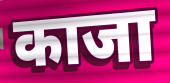
काजा